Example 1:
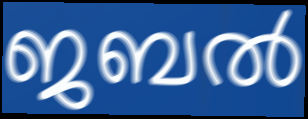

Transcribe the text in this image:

ജബൽ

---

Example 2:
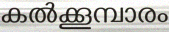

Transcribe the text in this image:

കൽക്കൂമ്പാരം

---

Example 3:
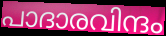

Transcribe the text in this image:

പാദാരവിന്ദം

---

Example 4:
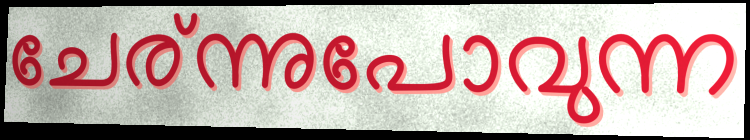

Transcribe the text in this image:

ചേര്ന്നുപോവുന്ന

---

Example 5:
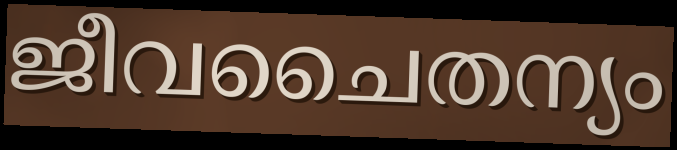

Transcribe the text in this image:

ജീവചൈതന്യം